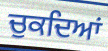
ਚੁਕਦਿਆਂ